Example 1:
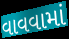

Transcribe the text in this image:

વાવવામાં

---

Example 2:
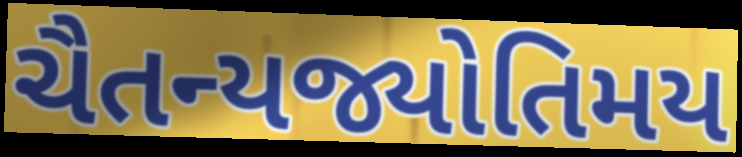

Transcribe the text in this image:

ચૈતન્યજ્યોતિમય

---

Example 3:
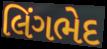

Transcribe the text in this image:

લિંગભેદ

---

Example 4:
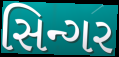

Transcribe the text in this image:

સિન્ગર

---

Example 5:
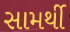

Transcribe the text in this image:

સામર્થી